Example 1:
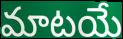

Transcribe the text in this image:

మాటయే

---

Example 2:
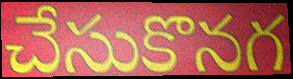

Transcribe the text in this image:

చేసుకొనగ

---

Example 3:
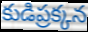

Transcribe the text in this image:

కుడిప్రక్కన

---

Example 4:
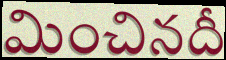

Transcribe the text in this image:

మించినదీ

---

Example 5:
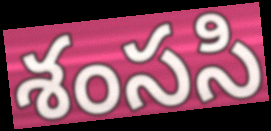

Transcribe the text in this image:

శంససి